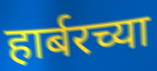
हार्बरच्या